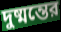
দুষ্মন্তের